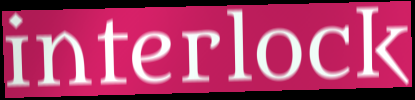
interlock